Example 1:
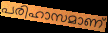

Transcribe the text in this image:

പരിഹാസമാണ്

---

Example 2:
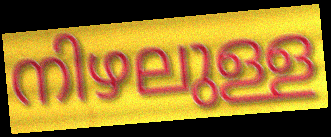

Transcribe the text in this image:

നിഴലുള്ള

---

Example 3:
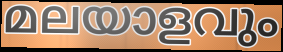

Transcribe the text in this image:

മലയാളവും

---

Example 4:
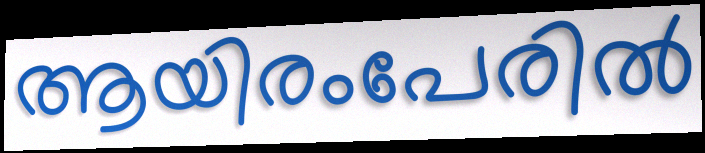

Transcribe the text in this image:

ആയിരംപേരിൽ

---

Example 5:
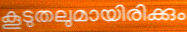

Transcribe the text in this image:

കൂടുതലുമായിരിക്കും